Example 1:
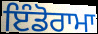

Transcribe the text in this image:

ਇੰਡੋਰਾਮਾ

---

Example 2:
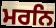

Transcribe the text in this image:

ਮਰਨਿ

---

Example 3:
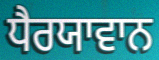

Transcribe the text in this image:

ਧੈਰਯਾਵਾਨ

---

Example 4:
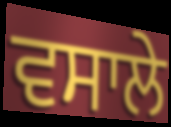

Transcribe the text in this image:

ਵਸਾਲੇ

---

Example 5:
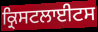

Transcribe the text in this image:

ਕ੍ਰਿਸਟਲਾਈਟਸ